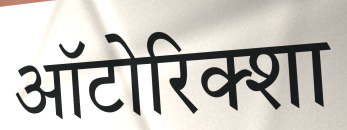
ऑटोरिक्‍शा